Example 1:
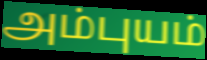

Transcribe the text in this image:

அம்புயம்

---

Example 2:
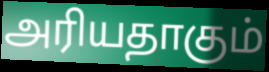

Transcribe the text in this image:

அரியதாகும்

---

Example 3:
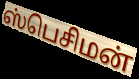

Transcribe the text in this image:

ஸ்பெசிமன்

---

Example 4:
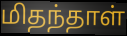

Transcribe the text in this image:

மிதந்தாள்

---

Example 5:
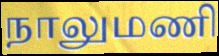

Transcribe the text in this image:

நாலுமணி